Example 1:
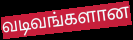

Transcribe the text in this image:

வடிவங்களான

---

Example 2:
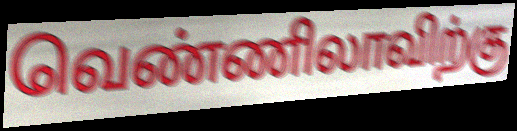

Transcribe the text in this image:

வெண்ணிலாவிற்கு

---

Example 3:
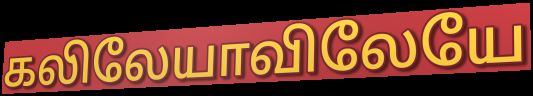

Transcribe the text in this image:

கலிலேயாவிலேயே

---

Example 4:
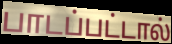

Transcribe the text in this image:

பாடப்பட்டால்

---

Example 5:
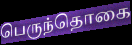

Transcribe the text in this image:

பெருந்தொகை